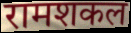
रामशकल